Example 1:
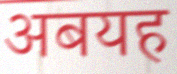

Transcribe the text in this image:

अबयह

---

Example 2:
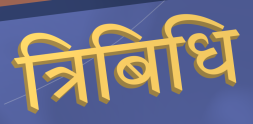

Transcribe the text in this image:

त्रिबिधि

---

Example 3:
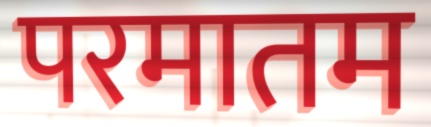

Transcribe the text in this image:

परमातम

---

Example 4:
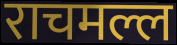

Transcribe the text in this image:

राचमल्ल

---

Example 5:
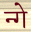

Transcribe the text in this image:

न्गे